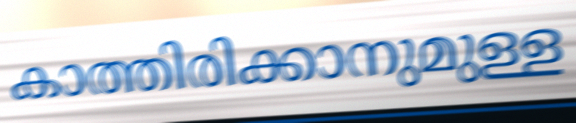
കാത്തിരിക്കാനുമുള്ള